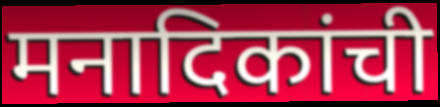
मनादिकांची